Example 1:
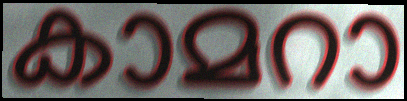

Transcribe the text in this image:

കാമറാ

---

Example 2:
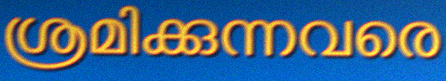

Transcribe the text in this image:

ശ്രമിക്കുന്നവരെ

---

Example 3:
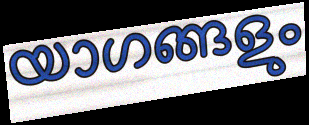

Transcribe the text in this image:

യാഗങ്ങളും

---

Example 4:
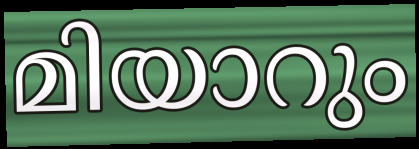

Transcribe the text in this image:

മിയാറും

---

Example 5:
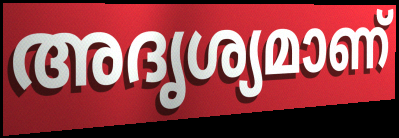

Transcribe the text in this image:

അദൃശ്യമാണ്